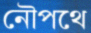
নৌপথে